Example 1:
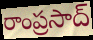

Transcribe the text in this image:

రాంప్రసాద్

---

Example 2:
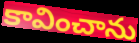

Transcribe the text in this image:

కావించాను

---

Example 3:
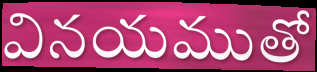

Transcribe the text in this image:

వినయముతో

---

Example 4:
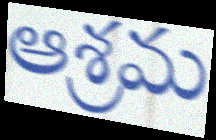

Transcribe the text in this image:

ఆశ్రమ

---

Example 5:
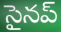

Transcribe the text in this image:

సైనప్